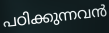
പഠിക്കുന്നവൻ